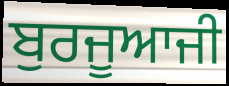
ਬੁਰਜੂਆਜੀ